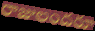
రాజులందరూ